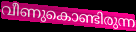
വീണുകൊണ്ടിരുന്ന